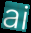
ai